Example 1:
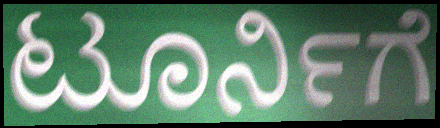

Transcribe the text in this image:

ಟೂರ್ನಿಗೆ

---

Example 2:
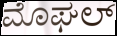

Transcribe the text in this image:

ಮೊಘಲ್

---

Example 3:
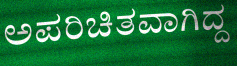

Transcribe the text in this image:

ಅಪರಿಚಿತವಾಗಿದ್ದ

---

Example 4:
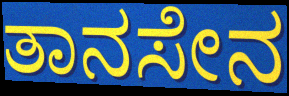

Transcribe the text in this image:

ತಾನಸೇನ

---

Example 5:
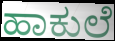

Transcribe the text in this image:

ಹಾಕುಲೆ